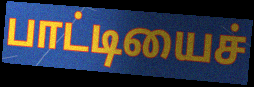
பாட்டியைச்